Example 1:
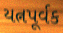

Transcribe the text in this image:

યત્નપૂર્વક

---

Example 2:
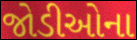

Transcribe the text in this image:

જોડીઓના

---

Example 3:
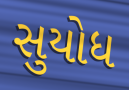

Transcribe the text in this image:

સુયોધ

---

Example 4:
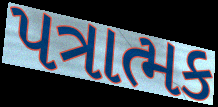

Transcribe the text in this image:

પત્રાત્મક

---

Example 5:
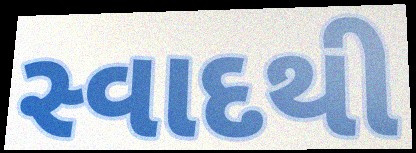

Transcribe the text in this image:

સ્વાદથી